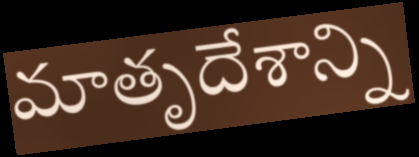
మాతృదేశాన్ని